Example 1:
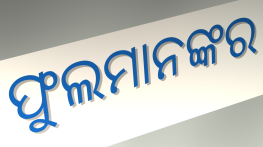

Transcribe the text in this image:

ଫୁଲମାନଙ୍କର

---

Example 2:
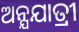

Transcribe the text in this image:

ଅନ୍ଯଯାତ୍ରୀ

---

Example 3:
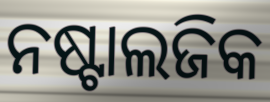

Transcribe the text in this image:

ନଷ୍ଟାଲଜିକ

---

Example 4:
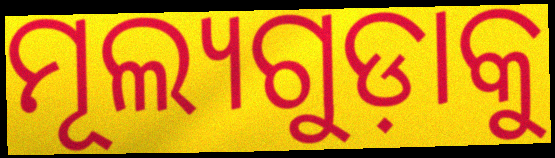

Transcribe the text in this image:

ମୂଲ୍ୟଗୁଡ଼ାକୁ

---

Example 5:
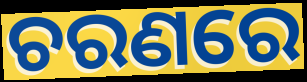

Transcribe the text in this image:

ଚରଣରେ